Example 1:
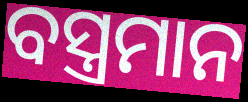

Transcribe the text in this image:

ବସ୍ତ୍ରମାନ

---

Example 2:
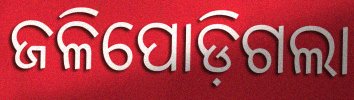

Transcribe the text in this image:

ଜଳିପୋଡ଼ିଗଲା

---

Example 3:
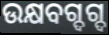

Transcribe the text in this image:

ଉକ୍ଷବଗ୍ଦଗ୍ଦ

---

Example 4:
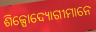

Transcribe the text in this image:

ଶିଳ୍ପୋଦ୍ୟୋଗୀମାନେ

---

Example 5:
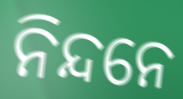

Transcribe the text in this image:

ନିନ୍ଦନେ